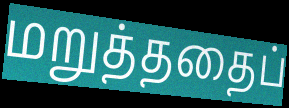
மறுத்ததைப்